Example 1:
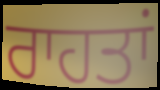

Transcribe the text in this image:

ਰਾਹਤਾਂ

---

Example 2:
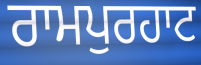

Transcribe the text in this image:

ਰਾਮਪੁਰਹਾਟ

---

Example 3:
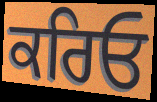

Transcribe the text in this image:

ਕਰਿਓ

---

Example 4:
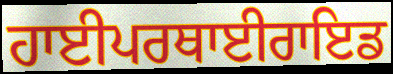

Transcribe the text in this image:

ਹਾਈਪਰਥਾਈਰਾਇਡ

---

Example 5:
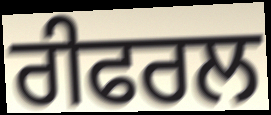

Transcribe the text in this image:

ਰੀਫਰਲ